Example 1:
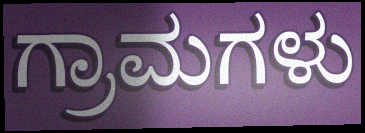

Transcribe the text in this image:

ಗ್ರಾಮಗಳು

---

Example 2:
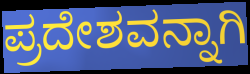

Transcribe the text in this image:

ಪ್ರದೇಶವನ್ನಾಗಿ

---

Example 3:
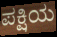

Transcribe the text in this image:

ಪಕ್ಷಿಯ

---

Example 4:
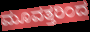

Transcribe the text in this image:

ಮೂವತ್ತರಿಂದ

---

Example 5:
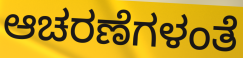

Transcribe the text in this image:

ಆಚರಣೆಗಳಂತೆ